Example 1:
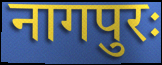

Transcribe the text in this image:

नागपुरः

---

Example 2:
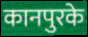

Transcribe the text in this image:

कानपुरके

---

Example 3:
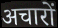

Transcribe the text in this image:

अचारों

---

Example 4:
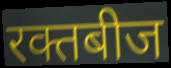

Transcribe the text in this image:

रक्तबीज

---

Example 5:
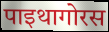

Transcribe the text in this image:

पाइथागोरस